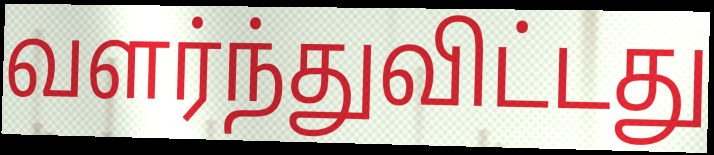
வளர்ந்துவிட்டது